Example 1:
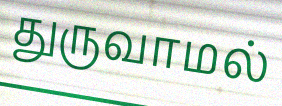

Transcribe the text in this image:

துருவாமல்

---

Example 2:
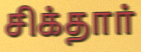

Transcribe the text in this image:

சிக்தார்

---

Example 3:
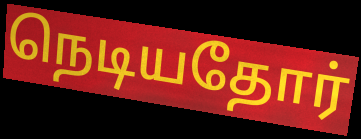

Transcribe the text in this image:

நெடியதோர்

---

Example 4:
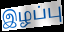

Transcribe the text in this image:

இழப்பு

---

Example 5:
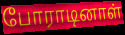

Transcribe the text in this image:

போராடினாள்